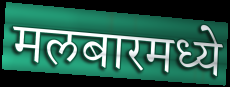
मलबारमध्ये